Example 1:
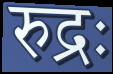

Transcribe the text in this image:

रुद्रः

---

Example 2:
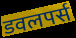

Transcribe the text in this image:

डवलपर्स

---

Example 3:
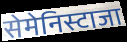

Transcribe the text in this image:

सेमेनिस्टाजा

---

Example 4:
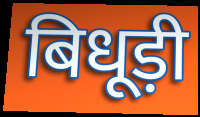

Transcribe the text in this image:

बिधूड़ी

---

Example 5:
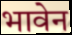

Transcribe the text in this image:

भावेन